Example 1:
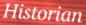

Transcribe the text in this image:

Historian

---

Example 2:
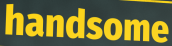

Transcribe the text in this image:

handsome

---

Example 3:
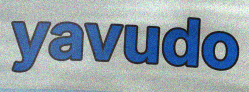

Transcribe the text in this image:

yavudo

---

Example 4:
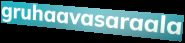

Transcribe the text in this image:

gruhaavasaraala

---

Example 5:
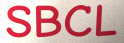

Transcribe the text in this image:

SBCL